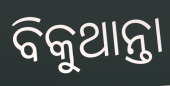
ବିକୁଥାନ୍ତା